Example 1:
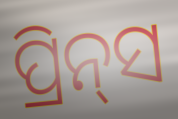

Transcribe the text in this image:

ପ୍ରିନ୍‍ସ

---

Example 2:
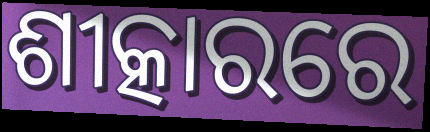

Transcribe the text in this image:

ଶୀତ୍କାରରେ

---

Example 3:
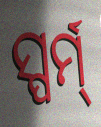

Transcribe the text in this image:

ସ୍ପର୍ମ୍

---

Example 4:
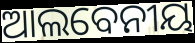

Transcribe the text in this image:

ଆଲବେନୀୟ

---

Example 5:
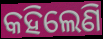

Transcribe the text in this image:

କହିଲେଣି